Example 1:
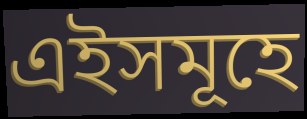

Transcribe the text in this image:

এইসমূহে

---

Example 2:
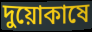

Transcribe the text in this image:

দুয়োকাষে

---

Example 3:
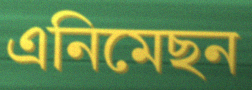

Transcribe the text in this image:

এনিমেছন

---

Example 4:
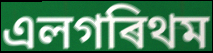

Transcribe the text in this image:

এলগৰিথম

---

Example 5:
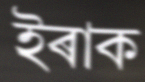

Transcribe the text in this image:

ইৰাক